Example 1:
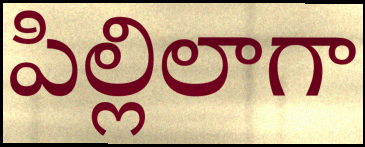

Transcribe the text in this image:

పిల్లిలాగా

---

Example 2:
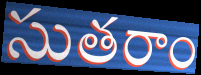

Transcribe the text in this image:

సుతరాం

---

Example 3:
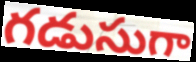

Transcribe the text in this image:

గడుసుగా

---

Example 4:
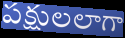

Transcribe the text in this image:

పక్షులలాగా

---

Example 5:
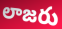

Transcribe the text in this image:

లాజరు